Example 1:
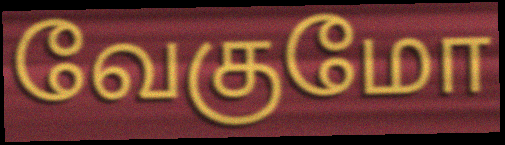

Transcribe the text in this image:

வேகுமோ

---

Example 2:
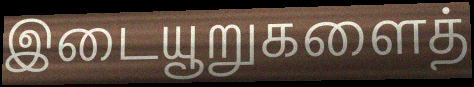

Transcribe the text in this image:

இடையூறுகளைத்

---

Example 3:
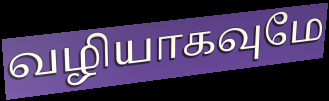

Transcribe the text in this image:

வழியாகவுமே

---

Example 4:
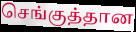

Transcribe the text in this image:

செங்குத்தான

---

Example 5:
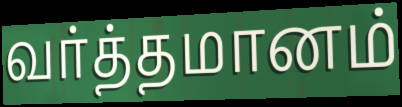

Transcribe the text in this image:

வர்த்தமானம்